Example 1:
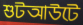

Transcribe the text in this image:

শুটআউটে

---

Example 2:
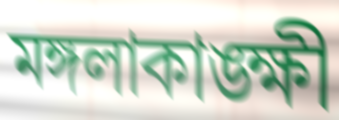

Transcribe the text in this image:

মঙ্গলাকাঙ্ক্ষী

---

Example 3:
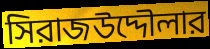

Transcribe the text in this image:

সিরাজউদ্দৌলার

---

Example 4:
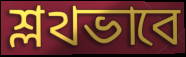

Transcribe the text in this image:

শ্লথভাবে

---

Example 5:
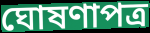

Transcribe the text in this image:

ঘোষণাপত্র